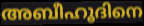
അബീഹൂദിനെ